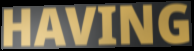
HAVING